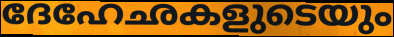
ദേഹേഛകളുടെയും